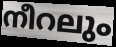
നീറലും